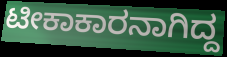
ಟೀಕಾಕಾರನಾಗಿದ್ದ